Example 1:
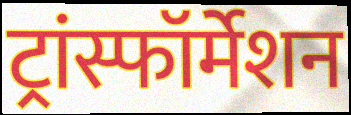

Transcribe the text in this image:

ट्रांस्फॉर्मेशन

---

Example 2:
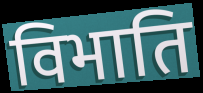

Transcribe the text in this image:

विभाति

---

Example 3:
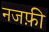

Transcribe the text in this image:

नजफ़ी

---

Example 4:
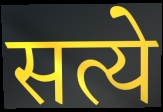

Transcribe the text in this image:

सत्ये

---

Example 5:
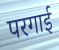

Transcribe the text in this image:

परगाई